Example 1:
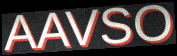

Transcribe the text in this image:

AAVSO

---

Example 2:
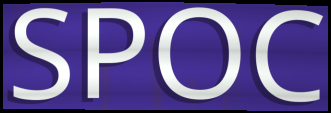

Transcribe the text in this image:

SPOC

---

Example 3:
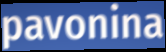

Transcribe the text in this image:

pavonina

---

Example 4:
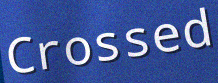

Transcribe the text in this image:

Crossed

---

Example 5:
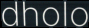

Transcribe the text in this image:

dholo